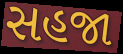
સહજા